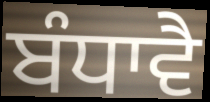
ਬੰਧਾਵੈ